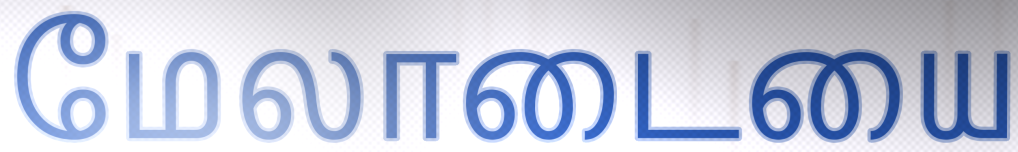
மேலாடையை